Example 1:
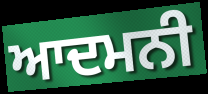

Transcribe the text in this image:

ਆਦਮਨੀ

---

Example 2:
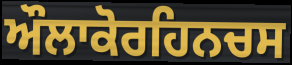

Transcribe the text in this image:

ਔਲਾਕੋਰਹਿਨਚਸ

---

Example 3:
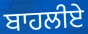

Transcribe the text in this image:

ਬਾਹਲੀਏ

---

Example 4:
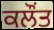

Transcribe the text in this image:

ਕਲੌਂਤ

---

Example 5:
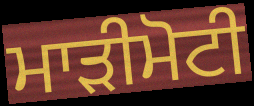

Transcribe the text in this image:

ਮਾੜੀਮੋਟੀ